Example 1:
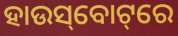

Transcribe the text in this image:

ହାଉସ୍‌ବୋଟ୍‌ରେ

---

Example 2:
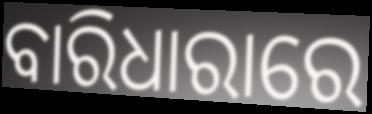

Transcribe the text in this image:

ବାରିଧାରାରେ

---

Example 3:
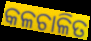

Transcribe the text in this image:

କଳଚାଳିତ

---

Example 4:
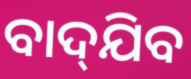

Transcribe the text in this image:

ବାଦ୍‌ଯିବ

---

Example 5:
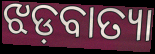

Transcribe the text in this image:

ଝଡ଼ବାତ୍ୟା